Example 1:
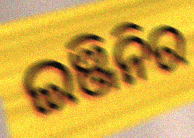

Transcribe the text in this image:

ଇଞ୍ଜିନିର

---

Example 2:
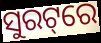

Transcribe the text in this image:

ସୁରଟ୍‌ରେ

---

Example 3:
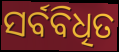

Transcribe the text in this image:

ସର୍ବବିଧିତ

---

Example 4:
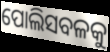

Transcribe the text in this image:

ପୋଲିସବଳକୁ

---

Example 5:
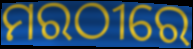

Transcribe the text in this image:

ମରଠୀରେ